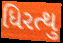
ધિરત્થુ